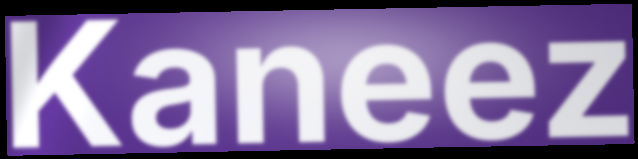
Kaneez